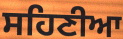
ਸਹਿਣੀਆ